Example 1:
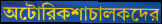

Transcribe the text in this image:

অটোরিকশাচালকদের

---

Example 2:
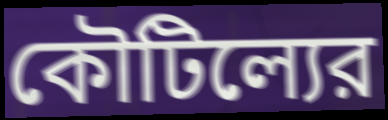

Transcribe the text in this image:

কৌটিল্যের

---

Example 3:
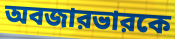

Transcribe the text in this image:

অবজারভারকে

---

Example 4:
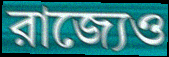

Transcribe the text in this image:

রাজ্যেও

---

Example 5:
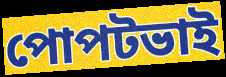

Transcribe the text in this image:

পোপটভাই